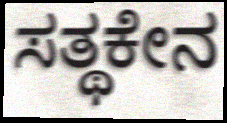
ಸತ್ಥಕೇನ